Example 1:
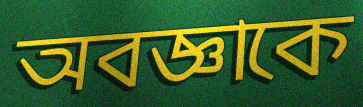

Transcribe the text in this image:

অবজ্ঞাকে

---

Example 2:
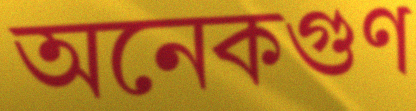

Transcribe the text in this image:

অনেকগুণ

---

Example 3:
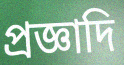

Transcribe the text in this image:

প্রজ্ঞাদি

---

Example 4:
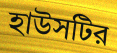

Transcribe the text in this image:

হাউসটির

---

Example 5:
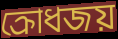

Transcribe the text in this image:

ক্রোধজয়